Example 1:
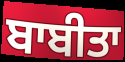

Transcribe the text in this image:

ਬਾਬੀਤਾ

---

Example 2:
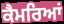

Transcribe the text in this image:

ਕੈਮਰਿਆਂ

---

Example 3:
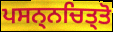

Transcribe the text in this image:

ਪਸਨ੍ਨਚਿਤ੍ਤੋ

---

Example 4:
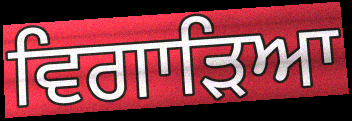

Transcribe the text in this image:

ਵਿਗਾੜਿਆ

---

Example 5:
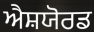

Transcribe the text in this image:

ਐਸ਼ਯੋਰਡ